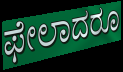
ಫೇಲಾದರೂ